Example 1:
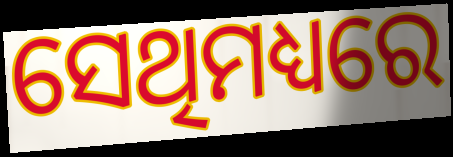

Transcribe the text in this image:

ସେଥିମଧ୍ୟରେ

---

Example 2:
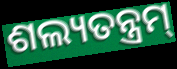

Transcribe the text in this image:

ଶଲ୍ୟତନ୍ତ୍ରମ୍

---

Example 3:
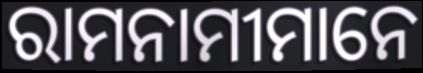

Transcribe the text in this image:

ରାମନାମୀମାନେ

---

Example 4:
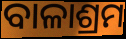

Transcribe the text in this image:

ବାଳାଶ୍ରମ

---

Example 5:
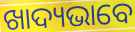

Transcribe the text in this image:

ଖାଦ୍ୟଭାବେ